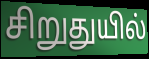
சிறுதுயில்